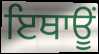
ਇਥਾਊਂ